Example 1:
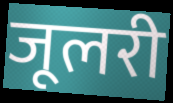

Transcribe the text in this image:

जूलरी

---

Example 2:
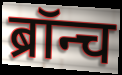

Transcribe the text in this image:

ब्रॉन्च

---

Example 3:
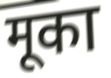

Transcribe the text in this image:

मूका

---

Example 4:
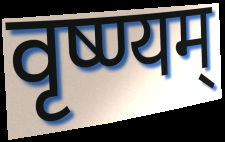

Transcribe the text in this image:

वृष्ण्यम्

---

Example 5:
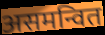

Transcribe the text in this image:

असमन्वित